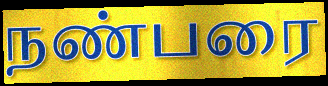
நண்பரை